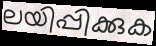
ലയിപ്പിക്കുക